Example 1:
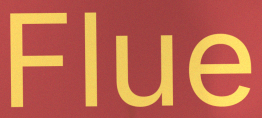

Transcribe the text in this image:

Flue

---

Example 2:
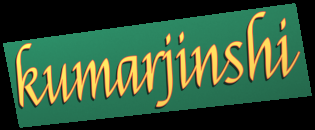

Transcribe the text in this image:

kumarjinshi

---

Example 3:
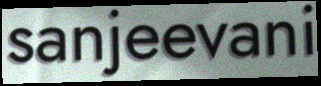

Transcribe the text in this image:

sanjeevani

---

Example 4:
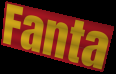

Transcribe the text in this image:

Fanta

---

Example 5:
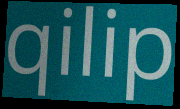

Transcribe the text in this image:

qilip